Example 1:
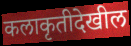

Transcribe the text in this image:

कलाकृतीदेखील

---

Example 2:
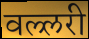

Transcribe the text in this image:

वल्लरी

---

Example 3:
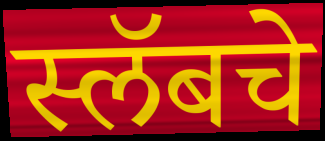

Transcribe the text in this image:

स्लॅबचे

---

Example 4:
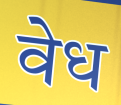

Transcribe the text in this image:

वेध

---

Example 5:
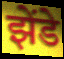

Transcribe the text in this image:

झेंडे